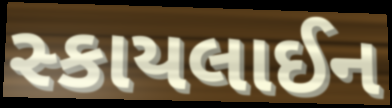
સ્કાયલાઈન